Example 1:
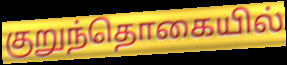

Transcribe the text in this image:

குறுந்தொகையில்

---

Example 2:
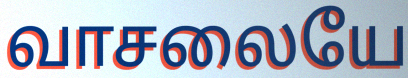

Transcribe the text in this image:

வாசலையே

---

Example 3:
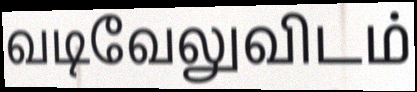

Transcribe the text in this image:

வடிவேலுவிடம்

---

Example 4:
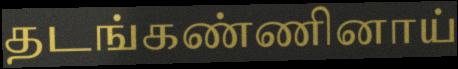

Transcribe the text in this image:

தடங்கண்ணினாய்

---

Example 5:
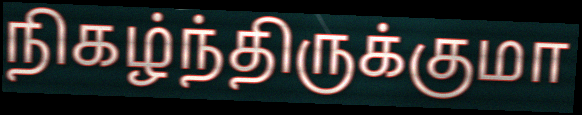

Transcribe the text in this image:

நிகழ்ந்திருக்குமா